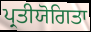
ਪ੍ਰਤੀਯੋਗਿਤਾ